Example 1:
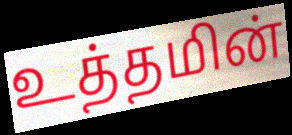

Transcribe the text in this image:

உத்தமின்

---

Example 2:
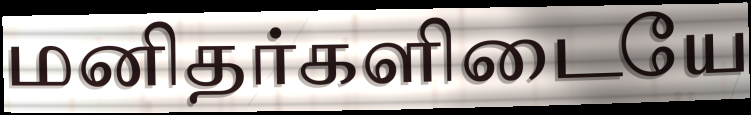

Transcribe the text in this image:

மனிதர்களிடையே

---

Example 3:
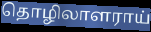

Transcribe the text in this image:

தொழிலாளராய்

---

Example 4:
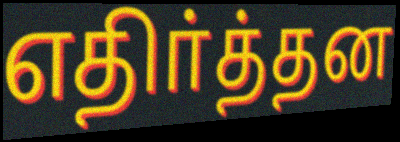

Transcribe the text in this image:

எதிர்த்தன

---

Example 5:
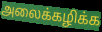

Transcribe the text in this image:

அலைக்கழிக்க